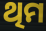
ଥିମ